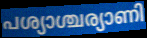
പശ്യാശ്ചര്യാണി